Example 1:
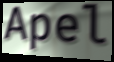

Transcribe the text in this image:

Apel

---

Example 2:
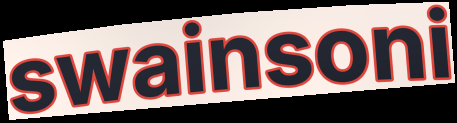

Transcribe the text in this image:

swainsoni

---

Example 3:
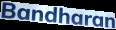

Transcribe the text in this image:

Bandharan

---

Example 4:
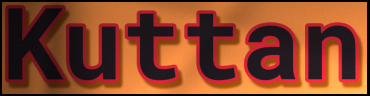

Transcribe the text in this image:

Kuttan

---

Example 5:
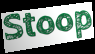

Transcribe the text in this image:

Stoop